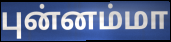
புன்னம்மா